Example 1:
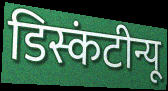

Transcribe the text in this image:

डिस्कंटीन्यू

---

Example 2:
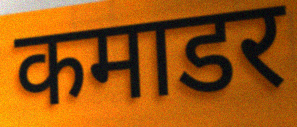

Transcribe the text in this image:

कमाडर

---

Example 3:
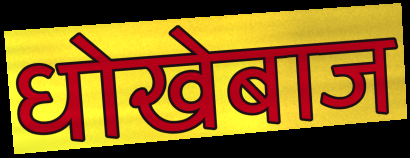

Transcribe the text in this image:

धोखेबाज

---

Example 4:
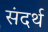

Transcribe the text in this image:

संदर्थ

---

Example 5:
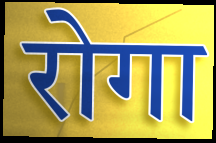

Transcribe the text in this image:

रोगा